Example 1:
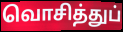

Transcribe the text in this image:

வொசித்துப்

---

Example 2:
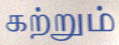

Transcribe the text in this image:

கற்றும்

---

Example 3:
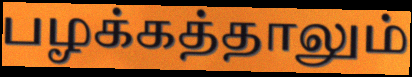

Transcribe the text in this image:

பழக்கத்தாலும்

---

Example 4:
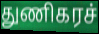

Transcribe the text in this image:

துணிகரச்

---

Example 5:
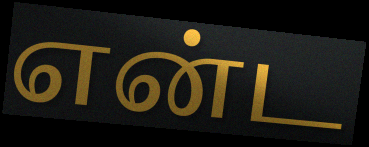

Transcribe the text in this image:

என்ட